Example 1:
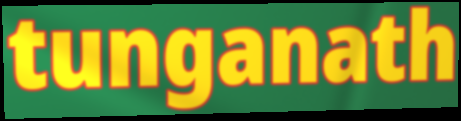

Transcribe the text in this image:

tunganath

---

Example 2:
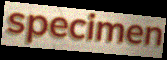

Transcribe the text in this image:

specimen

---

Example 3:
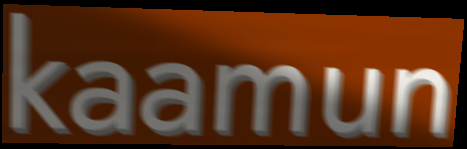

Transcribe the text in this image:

kaamun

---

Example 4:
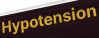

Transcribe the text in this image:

Hypotension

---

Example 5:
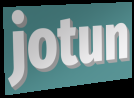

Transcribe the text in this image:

jotun